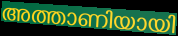
അത്താണിയായി